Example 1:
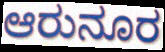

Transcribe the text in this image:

ಆರುನೂರ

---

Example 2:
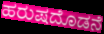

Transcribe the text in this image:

ಹರುಷದೊಡನೆ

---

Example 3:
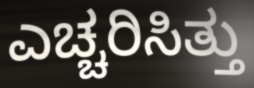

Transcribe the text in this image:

ಎಚ್ಚರಿಸಿತ್ತು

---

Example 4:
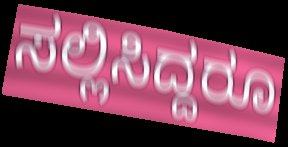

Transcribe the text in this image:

ಸಲ್ಲಿಸಿದ್ದರೂ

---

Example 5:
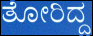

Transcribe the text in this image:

ತೋರಿದ್ದ